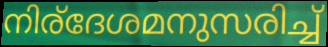
നിര്ദേശമനുസരിച്ച്